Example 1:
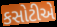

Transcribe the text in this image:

કસોટીએ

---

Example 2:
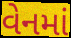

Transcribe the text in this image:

વેનમાં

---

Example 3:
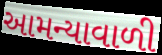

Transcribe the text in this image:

આમન્યાવાળી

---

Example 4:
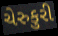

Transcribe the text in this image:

ચેરુકુરી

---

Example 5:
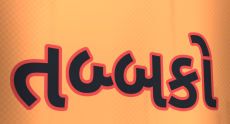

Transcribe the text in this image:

તબ્બકો